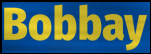
Bobbay